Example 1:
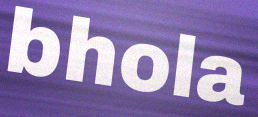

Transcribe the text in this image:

bhola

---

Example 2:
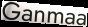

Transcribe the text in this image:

Ganmaa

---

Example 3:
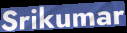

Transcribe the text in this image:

Srikumar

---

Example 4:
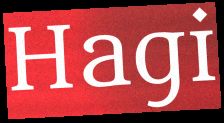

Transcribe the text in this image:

Hagi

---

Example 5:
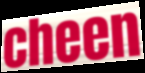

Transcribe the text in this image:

cheen